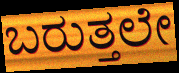
ಬರುತ್ತಲೇ